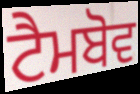
ਟੈਮਬੋਵ